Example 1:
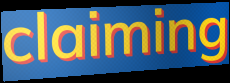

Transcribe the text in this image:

claiming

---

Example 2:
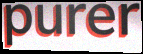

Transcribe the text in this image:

purer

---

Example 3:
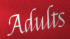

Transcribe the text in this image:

Adults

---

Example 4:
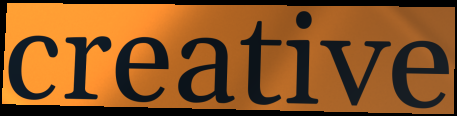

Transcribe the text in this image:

creative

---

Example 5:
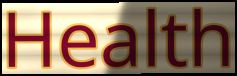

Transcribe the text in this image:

Health